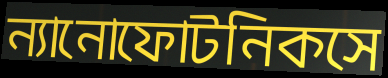
ন্যানোফোটনিকসে